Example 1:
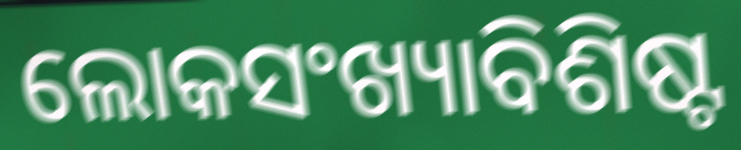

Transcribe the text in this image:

ଲୋକସଂଖ୍ୟାବିଶିଷ୍ଟ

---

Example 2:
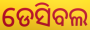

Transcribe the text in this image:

ଡେସିବଲ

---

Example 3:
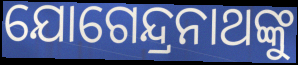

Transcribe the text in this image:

ଯୋଗେନ୍ଦ୍ରନାଥଙ୍କୁ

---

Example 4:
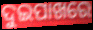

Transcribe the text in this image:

ଦୁଇପାଖରେ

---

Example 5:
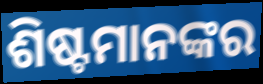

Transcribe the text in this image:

ଶିଷ୍ଟମାନଙ୍କର